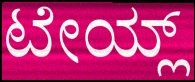
ಟೇಯ್ಲ್